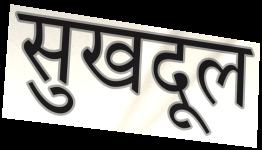
सुखदूल